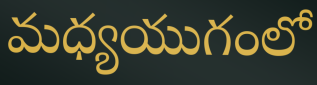
మధ్యయుగంలో